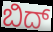
ಬಿದ್